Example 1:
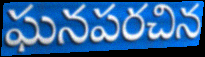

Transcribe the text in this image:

ఘనపరచిన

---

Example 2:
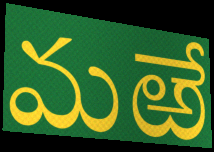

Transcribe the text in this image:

మఱే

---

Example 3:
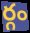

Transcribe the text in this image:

ర్గం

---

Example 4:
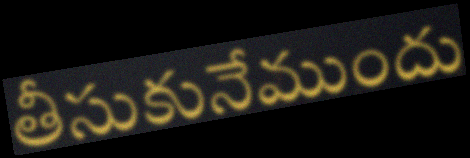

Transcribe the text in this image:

తీసుకునేముందు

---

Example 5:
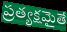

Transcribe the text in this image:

ప్రత్యక్షమైతే